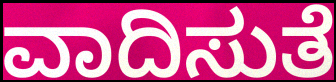
ವಾದಿಸುತೆ